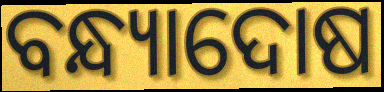
ବନ୍ଧ୍ୟାଦୋଷ